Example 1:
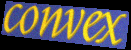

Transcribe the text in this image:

convex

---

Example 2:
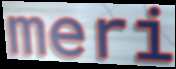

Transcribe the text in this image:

meri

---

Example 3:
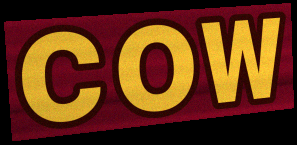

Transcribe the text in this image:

cow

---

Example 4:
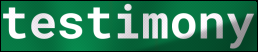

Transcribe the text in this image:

testimony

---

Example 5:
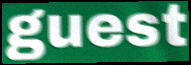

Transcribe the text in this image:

guest